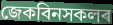
জেকবিনসকলৰ